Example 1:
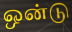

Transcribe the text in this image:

ஒன்டு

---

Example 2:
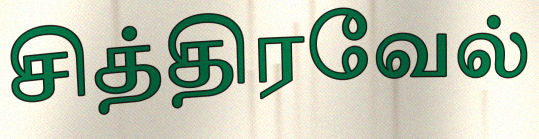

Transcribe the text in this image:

சித்திரவேல்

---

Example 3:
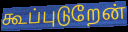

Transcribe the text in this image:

கூப்புடுறேன்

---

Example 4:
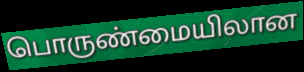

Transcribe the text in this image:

பொருண்மையிலான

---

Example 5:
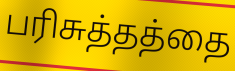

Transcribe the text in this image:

பரிசுத்தத்தை